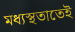
মধ্যস্থতাতেই